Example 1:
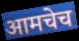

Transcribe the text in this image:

आमचेच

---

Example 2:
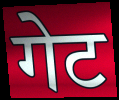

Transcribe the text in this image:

गेट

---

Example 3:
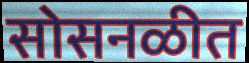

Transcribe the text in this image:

सोसनळीत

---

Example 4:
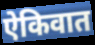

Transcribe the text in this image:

ऐकिवात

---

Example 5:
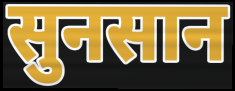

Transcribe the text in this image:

सुनसान